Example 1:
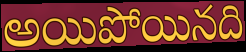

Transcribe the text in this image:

అయిపోయినది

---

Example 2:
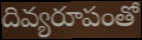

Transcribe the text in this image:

దివ్యరూపంతో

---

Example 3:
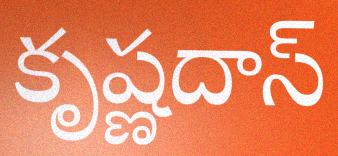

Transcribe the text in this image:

కృష్ణదాస్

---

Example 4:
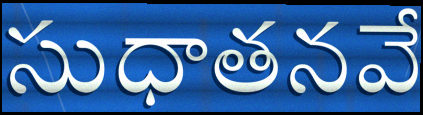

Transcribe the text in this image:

సుధాతనవే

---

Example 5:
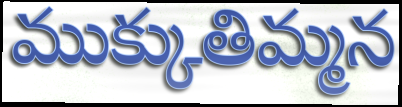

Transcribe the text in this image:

ముక్కుతిమ్మన